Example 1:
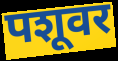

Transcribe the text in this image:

पशूवर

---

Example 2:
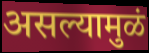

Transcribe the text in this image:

असल्यामुळं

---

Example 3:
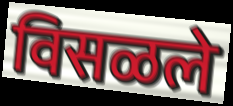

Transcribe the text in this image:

विसळले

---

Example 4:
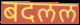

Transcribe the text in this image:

बदलल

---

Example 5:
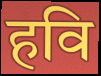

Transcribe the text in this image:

हवि